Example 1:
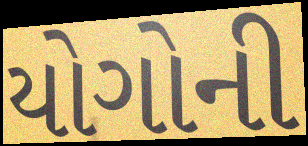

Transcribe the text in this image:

યોગોની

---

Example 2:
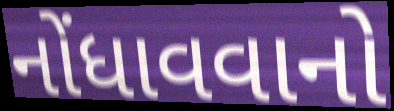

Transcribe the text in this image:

નોંધાવવાનો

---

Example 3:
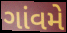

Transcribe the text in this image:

ગાંવમે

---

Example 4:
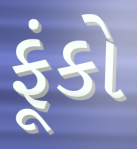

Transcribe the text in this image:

ફૂંકો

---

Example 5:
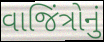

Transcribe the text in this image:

વાજિંત્રોનું